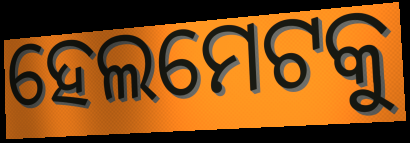
ହେଲମେଟକୁ